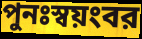
পুনঃস্বয়ংবর